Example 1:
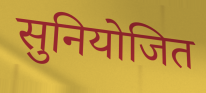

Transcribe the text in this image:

सुनियोजित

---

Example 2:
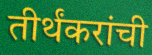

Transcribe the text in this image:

तीर्थंकरांची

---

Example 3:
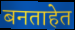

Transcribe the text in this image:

बनताहेत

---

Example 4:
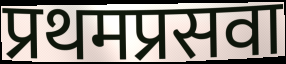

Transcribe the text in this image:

प्रथमप्रसवा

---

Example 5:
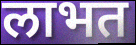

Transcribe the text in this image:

लाभत